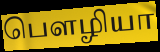
பௌழியா